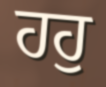
ਹਹੁ